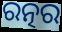
ରତ୍ନର